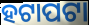
ହଟାପଟା